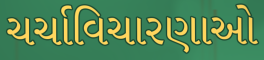
ચર્ચાવિચારણાઓ